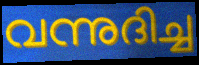
വന്നുദിച്ച